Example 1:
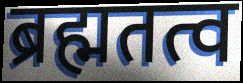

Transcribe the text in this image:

ब्रह्मतत्व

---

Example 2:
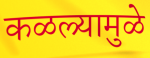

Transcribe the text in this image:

कळल्यामुळे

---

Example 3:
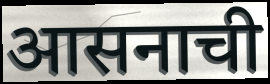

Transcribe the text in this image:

आसनाची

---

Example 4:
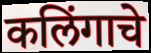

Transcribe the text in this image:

कलिंगाचे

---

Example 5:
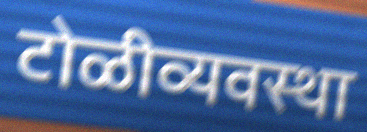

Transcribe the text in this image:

टोळीव्यवस्था